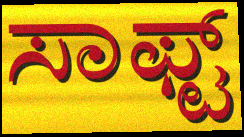
ಸಾಫ್ಟ್